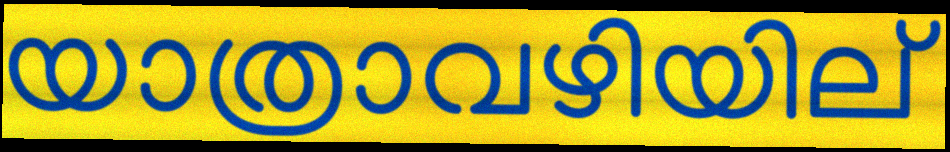
യാത്രാവഴിയില്